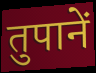
तुपानें